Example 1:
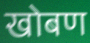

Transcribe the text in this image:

खोबण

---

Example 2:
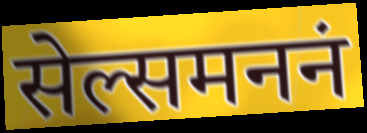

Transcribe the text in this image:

सेल्समननं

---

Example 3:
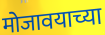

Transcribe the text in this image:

मोजावयाच्या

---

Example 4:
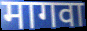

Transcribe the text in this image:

मागवा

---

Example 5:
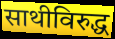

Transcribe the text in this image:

साथीविरुद्ध